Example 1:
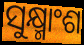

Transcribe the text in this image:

ସୁକ୍ଷ୍ମାଂଶ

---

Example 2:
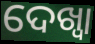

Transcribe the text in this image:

ଦେଖ୍ବା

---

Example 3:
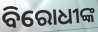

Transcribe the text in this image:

ବିରୋଧୀଙ୍କ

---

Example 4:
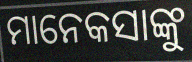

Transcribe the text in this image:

ମାନେକସାଙ୍କୁ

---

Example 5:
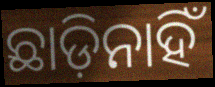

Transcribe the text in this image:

ଛାଡ଼ିନାହିଁ